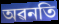
অৱনতি